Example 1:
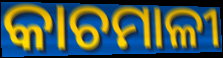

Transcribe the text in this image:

କାଚମାଳୀ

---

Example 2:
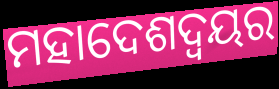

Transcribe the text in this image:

ମହାଦେଶଦ୍ଵୟର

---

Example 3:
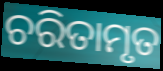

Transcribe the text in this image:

ଚରିତାମୃତ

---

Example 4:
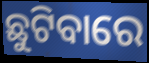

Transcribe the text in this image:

ଛୁଟିବାରେ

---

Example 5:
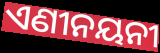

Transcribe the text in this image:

ଏଣୀନୟନୀ